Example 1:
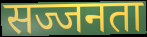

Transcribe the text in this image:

सज्जनता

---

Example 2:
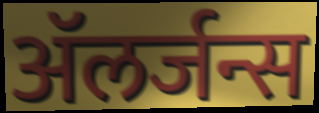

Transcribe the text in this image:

ॲलर्जन्स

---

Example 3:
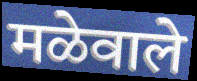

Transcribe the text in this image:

मळेवाले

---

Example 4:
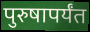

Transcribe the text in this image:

पुरुषापर्यंत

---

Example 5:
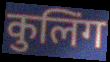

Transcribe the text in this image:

कुलिंग